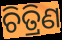
ଚିତ୍ରିଣ